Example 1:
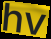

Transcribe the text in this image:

hv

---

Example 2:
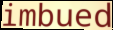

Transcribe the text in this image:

imbued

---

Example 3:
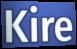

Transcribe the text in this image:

Kire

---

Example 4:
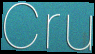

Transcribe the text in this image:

Cru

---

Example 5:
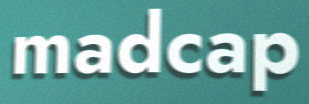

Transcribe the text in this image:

madcap